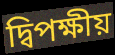
দ্বিপক্ষীয়